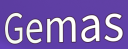
Gemas